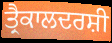
ਤ੍ਰੈਕਾਲਦਰਸ਼ੀ